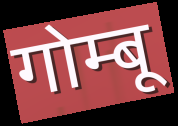
गोम्बू